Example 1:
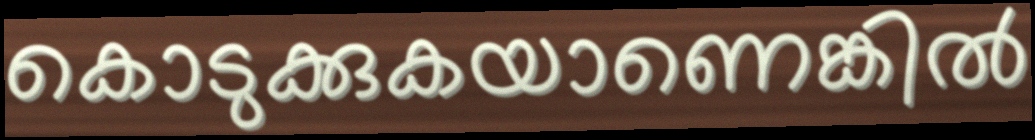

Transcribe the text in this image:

കൊടുക്കുകയാണെങ്കിൽ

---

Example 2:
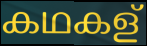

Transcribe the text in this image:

കഥകള്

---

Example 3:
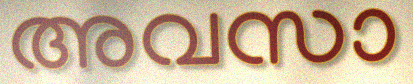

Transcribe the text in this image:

അവസാ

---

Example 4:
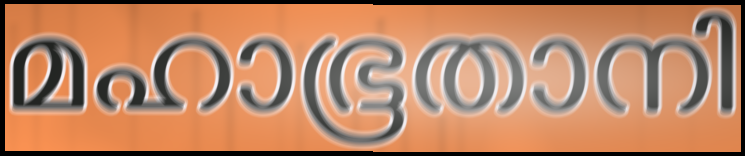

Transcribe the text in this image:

മഹാഭൂതാനി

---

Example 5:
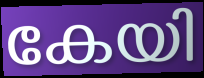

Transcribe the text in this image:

കേയി